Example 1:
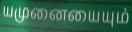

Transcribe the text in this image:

யமுனையையும்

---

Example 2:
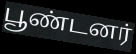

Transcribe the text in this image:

பூண்டனர்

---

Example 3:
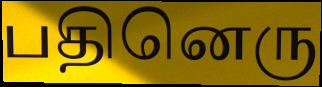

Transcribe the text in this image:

பதினெரு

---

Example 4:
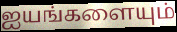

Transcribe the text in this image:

ஐயங்களையும்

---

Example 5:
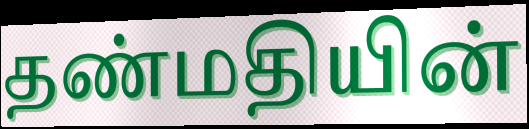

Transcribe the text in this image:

தண்மதியின்